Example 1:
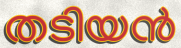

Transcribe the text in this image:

തടിയൻ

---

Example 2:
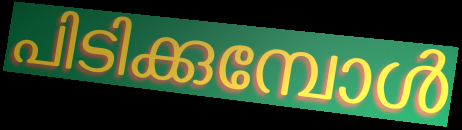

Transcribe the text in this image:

പിടിക്കുമ്പോൾ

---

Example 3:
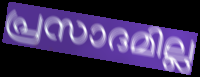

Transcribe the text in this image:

പ്രസാദമില്ല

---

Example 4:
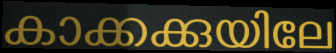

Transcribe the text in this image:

കാക്കക്കുയിലേ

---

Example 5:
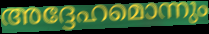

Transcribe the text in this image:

അദ്ദേഹമൊന്നും